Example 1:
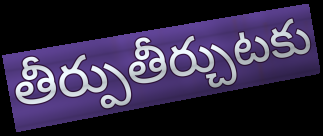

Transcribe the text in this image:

తీర్పుతీర్చుటకు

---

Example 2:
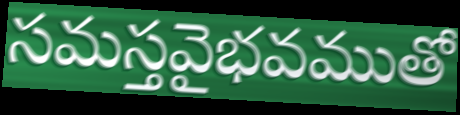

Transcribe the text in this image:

సమస్తవైభవముతో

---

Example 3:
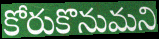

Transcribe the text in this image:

కోరుకొనుమని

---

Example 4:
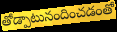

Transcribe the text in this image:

తోడ్పాటునందించడంతో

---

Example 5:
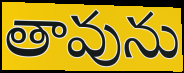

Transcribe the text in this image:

తావును